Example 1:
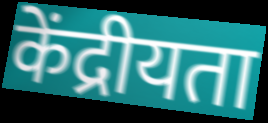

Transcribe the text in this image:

केंद्रीयता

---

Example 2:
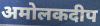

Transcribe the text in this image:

अमोलकदीप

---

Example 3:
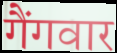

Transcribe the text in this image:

गैंगवार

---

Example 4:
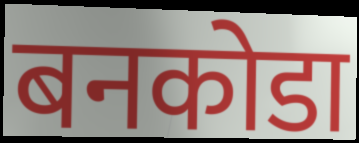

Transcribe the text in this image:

बनकोडा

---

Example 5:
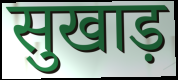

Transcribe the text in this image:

सुखाड़